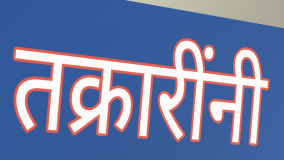
तक्रारींनी